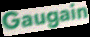
Gaugain